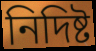
নিদিষ্ট